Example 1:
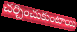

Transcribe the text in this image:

చర్చించుకుంటాయి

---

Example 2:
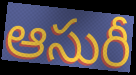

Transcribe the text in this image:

ఆసురీ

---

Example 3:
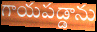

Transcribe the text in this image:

గాయపడ్డాను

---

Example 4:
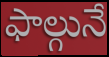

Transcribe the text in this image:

ఫాల్గునే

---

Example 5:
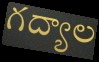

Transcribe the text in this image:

గద్యాల